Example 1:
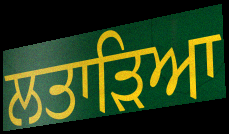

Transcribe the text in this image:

ਲਤਾੜਿਆ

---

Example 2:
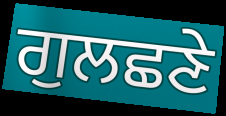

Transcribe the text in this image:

ਗੁਲਛਣੇ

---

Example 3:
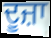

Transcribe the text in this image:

ਦੂਜ਼ਾ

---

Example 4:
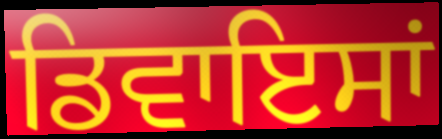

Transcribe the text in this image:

ਡਿਵਾਇਸਾਂ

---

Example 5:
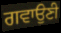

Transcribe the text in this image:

ਗਵਾਉਣੀ